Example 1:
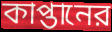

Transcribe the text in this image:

কাপ্তানের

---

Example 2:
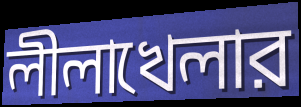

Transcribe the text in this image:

লীলাখেলার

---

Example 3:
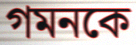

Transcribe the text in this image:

গমনকে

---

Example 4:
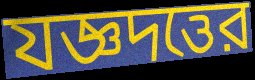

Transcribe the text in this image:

যজ্ঞদত্তের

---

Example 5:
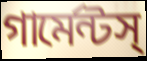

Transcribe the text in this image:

গার্মেন্টস্